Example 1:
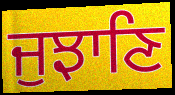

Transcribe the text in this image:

ਜੁਝਾਣਿ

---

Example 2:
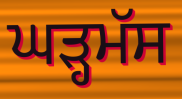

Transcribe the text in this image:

ਘੜ੍ਹਮੱਸ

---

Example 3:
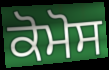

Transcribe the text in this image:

ਕੋਮੋਸ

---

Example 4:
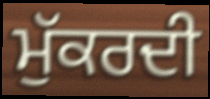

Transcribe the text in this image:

ਮੁੱਕਰਦੀ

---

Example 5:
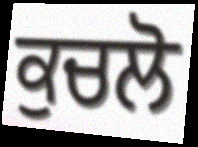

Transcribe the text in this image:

ਕੁਚਲੋ